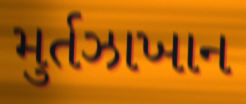
મુર્તઝાખાન